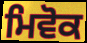
ਮਿਵੋਕ